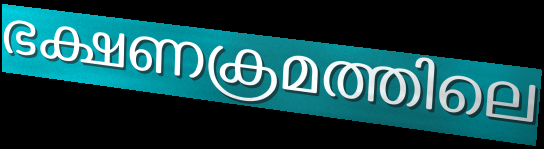
ഭക്ഷണക്രമത്തിലെ